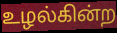
உழல்கின்ற